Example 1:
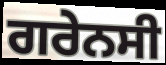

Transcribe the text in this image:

ਗਰੇਨਸੀ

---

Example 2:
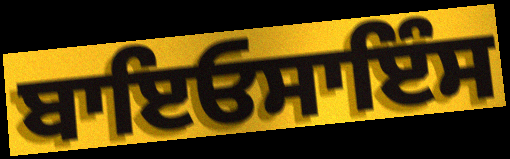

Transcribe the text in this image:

ਬਾਇਓਸਾਇੰਸ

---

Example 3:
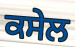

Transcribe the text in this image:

ਕਸੇਲ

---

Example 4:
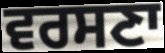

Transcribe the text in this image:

ਵਰਸਣਾ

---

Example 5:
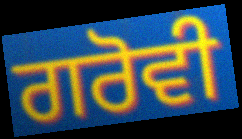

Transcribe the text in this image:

ਗਰੋਵੀ